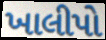
ખાલીપો